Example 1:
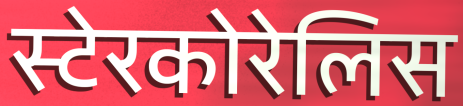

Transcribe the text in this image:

स्टेरकोरेलिस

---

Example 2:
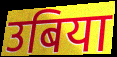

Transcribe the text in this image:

उबिया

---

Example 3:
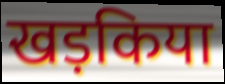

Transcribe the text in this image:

खड़किया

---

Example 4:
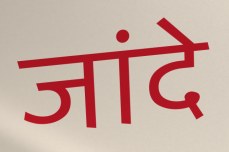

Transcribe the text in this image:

जांदे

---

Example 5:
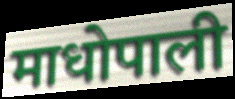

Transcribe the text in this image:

माधोपाली